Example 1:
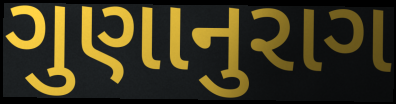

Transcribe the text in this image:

ગુણાનુરાગ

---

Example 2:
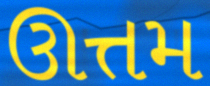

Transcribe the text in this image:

ઊત્તમ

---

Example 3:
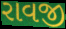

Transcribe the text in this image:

રાવજી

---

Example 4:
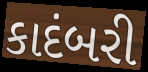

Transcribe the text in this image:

કાદંબરી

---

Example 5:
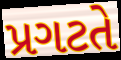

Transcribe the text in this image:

પ્રગટતે